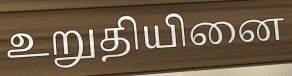
உறுதியினை